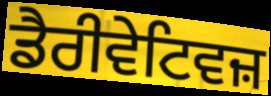
ਡੈਰੀਵੇਟਿਵਜ਼